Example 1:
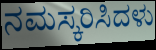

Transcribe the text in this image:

ನಮಸ್ಕರಿಸಿದಳು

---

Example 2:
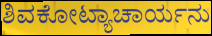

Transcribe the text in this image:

ಶಿವಕೋಟ್ಯಾಚಾರ್ಯನು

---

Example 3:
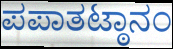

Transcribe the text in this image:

ಪಪಾತಟ್ಠಾನಂ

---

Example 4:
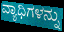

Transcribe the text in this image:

ವ್ಯಾಧಿಗಳನ್ನು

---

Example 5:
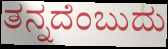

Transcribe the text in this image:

ತನ್ನದೆಂಬುದು